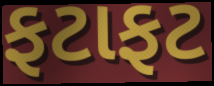
ફટાફટ